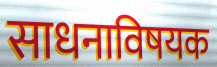
साधनाविषयक